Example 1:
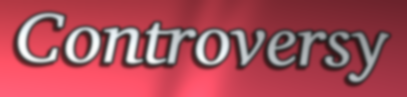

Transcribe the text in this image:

Controversy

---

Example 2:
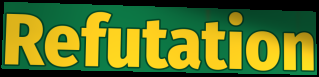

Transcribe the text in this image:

Refutation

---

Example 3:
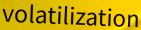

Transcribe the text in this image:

volatilization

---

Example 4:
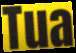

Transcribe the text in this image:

Tua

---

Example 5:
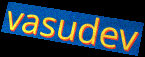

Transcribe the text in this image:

vasudev